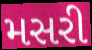
મસરી